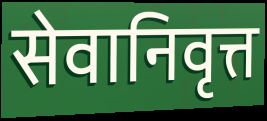
सेवानिवृत्त